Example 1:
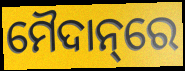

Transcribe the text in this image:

ମୈଦାନ୍‌ରେ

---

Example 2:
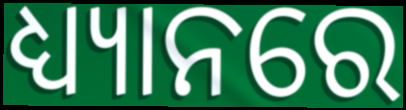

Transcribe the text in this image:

ଧ୍ୟ୍ୟାନରେ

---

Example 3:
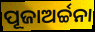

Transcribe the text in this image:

ପୂଜାଅର୍ଚ୍ଚନା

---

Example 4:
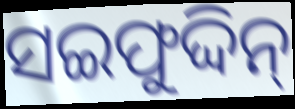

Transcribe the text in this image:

ସଇଫୁଦ୍ଦିନ୍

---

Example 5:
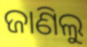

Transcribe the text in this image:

ଜାଣିଲୁ